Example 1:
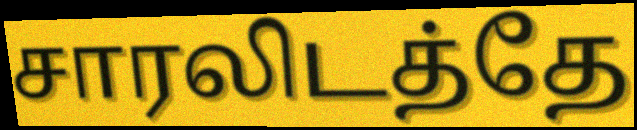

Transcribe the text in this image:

சாரலிடத்தே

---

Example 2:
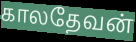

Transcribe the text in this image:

காலதேவன்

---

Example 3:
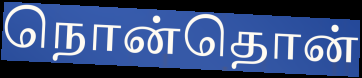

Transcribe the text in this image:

நொன்தொன்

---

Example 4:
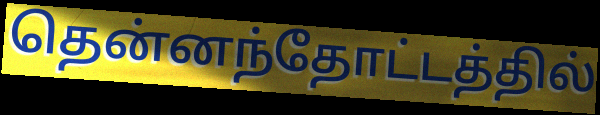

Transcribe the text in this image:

தென்னந்தோட்டத்தில்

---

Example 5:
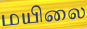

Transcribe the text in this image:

மயிலை